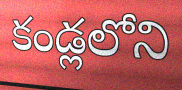
కండ్లలోని